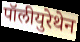
पॉलीयुरेथेन